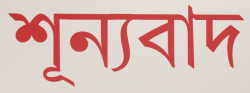
শূন্যবাদ